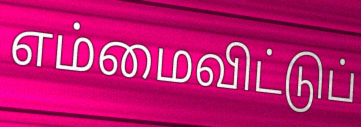
எம்மைவிட்டுப்